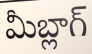
మీబ్లాగ్